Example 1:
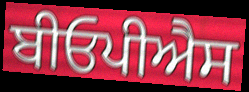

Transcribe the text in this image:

ਬੀਓਪੀਐਸ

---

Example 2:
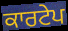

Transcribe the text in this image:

ਕਾਰਟੇਪ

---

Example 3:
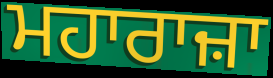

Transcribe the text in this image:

ਮਹਾਰਾਜ਼ਾ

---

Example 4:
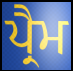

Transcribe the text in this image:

ਪ੍ਰੈਮ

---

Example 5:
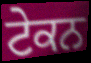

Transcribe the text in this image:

ਟੇਕਨ